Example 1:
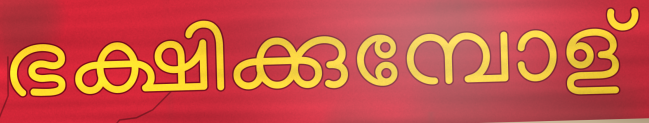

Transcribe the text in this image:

ഭക്ഷിക്കുമ്പോള്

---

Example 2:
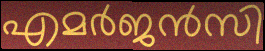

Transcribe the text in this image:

എമർജൻസി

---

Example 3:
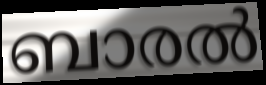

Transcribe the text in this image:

ബാരൽ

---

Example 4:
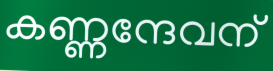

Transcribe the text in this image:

കണ്ണന്ദേവന്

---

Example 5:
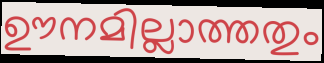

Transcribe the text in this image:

ഊനമില്ലാത്തതും